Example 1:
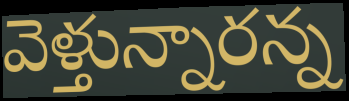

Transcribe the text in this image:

వెళ్తున్నారన్న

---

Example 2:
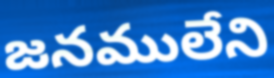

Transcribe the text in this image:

జనములేని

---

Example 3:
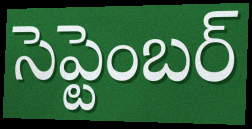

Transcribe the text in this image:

సెప్టెంబర్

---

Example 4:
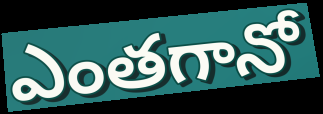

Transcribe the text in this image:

ఎంతగానో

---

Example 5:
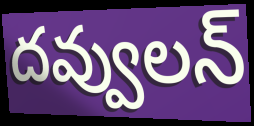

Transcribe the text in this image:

దవ్వులన్